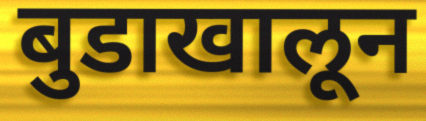
बुडाखालून